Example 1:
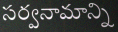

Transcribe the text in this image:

సర్వనామాన్ని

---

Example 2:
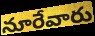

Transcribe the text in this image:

నూరేవారు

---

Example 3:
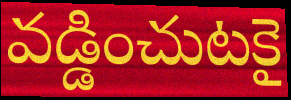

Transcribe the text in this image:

వడ్డించుటకై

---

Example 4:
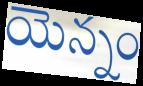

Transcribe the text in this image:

యెన్నం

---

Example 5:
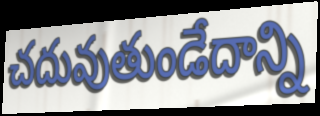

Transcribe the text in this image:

చదువుతుండేదాన్ని